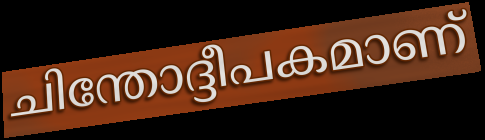
ചിന്തോദ്ദീപകമാണ്